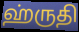
ஹ்ருதி